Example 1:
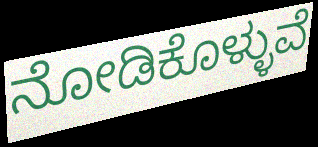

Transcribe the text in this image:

ನೋಡಿಕೊಳ್ಳುವೆ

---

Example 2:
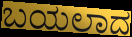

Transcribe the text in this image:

ಬಯಲಾದ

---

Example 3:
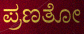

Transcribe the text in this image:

ಪ್ರಣತೋ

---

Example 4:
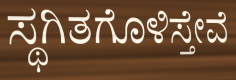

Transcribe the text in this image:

ಸ್ಥಗಿತಗೊಳಿಸ್ತೇವೆ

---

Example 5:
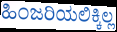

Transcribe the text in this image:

ಹಿಂಜರಿಯಲಿಕ್ಕಿಲ್ಲ